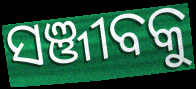
ସଞ୍ଜୀବକୁ